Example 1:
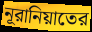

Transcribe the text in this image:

নূরানিয়াতের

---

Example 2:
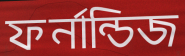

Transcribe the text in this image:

ফর্নান্ডিজ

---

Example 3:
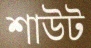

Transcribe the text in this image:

শাউট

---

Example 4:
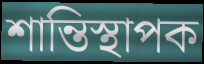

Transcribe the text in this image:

শান্তিস্থাপক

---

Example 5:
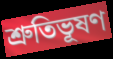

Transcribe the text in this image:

শ্রুতিভূষণ